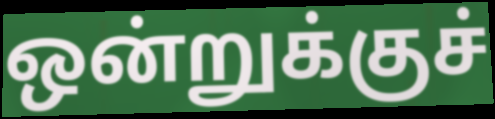
ஒன்றுக்குச்